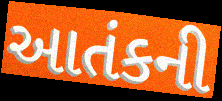
આતંકની